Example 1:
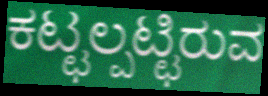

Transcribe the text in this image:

ಕಟ್ಟಲ್ಪಟ್ಟಿರುವ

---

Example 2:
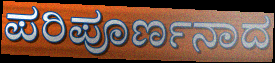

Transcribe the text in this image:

ಪರಿಪೂರ್ಣನಾದ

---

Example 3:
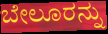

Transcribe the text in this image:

ಬೇಲೂರನ್ನು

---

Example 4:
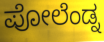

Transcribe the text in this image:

ಪೋಲೆಂಡ್ನ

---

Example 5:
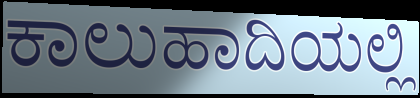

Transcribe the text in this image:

ಕಾಲುಹಾದಿಯಲ್ಲಿ